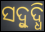
ସଦ୍ବୁଦ୍ଧି